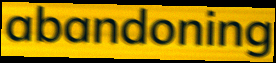
abandoning